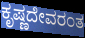
ಕೃಷ್ಣದೇವರಂತ